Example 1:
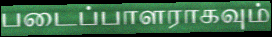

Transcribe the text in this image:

படைப்பாளராகவும்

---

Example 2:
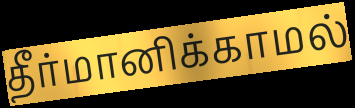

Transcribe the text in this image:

தீர்மானிக்காமல்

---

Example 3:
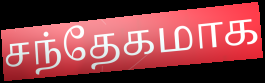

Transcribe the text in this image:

சந்தேகமாக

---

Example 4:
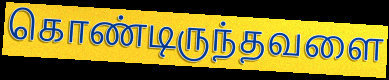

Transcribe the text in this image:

கொண்டிருந்தவளை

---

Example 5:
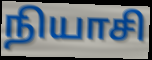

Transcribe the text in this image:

நியாசி